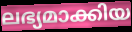
ലഭ്യമാക്കിയ